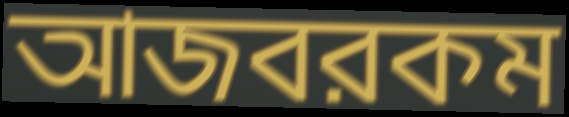
আজবরকম